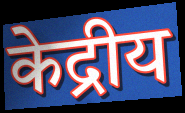
केद्रीय